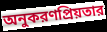
অনুকরণপ্রিয়তার